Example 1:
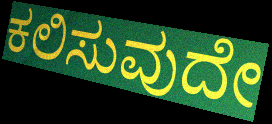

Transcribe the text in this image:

ಕಲಿಸುವುದೇ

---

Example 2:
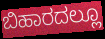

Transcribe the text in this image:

ಬಿಹಾರದಲ್ಲೂ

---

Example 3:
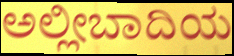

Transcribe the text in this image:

ಅಲ್ಲೀಬಾದಿಯ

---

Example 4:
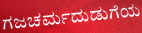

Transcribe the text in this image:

ಗಜಚರ್ಮದುಡುಗೆಯ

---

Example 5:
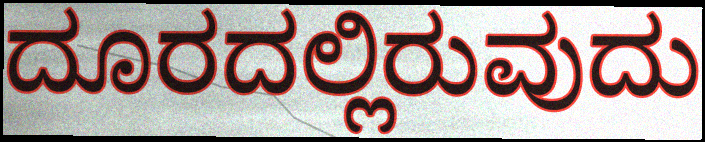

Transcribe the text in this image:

ದೂರದಲ್ಲಿರುವುದು